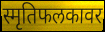
स्मृतिफलकावर